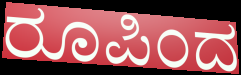
ರೂಪಿಂದ